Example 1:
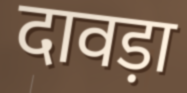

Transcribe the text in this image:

दावड़ा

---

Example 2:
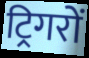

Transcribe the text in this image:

ट्रिगरों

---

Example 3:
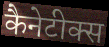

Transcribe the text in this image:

कैनेटीक्स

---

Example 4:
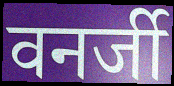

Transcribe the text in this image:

वनर्जी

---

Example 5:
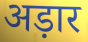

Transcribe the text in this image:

अड़ार